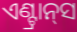
ଏଣ୍ଟ୍ରାନ୍‌ସ